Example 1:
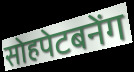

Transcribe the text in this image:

सोहपेटबनेंग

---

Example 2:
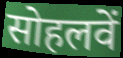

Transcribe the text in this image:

सोहलवें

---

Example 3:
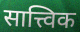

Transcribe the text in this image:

सात्त्विक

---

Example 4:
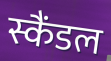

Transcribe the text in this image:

स्कैंडल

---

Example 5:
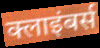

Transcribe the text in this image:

क्लाइंबर्स